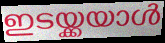
ഇടയ്ക്കയാൾ